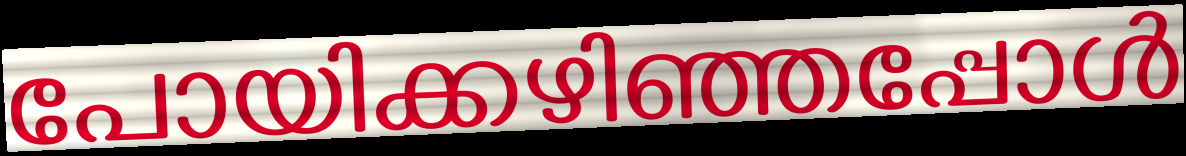
പോയിക്കഴിഞ്ഞപ്പോൾ